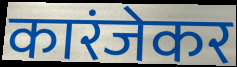
कारंजेकर